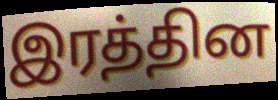
இரத்தின